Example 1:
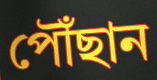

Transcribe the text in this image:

পৌঁছান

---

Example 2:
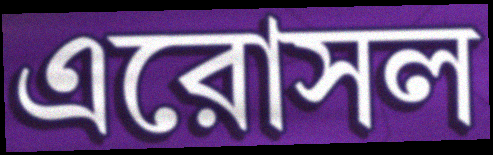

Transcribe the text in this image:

এরোসল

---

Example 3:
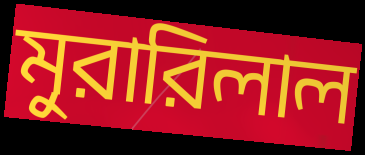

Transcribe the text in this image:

মুরারিলাল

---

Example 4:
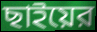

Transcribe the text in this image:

ছাইয়ের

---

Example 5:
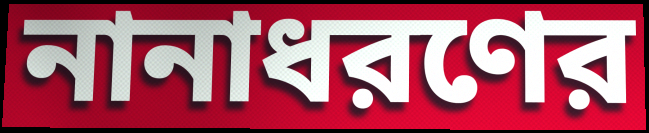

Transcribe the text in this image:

নানাধরণের